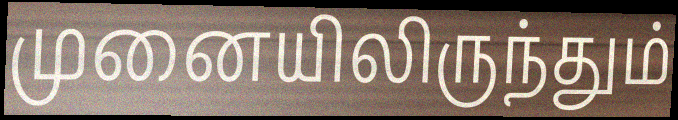
முனையிலிருந்தும்